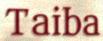
Taiba